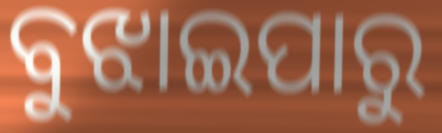
ବୁଝାଇପାରୁ